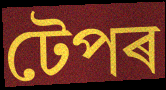
টেপৰ